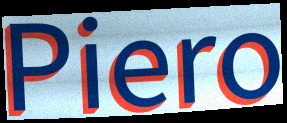
Piero